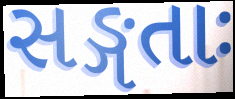
સઙ્ગતાઃ